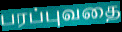
பரப்புவதை